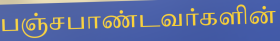
பஞ்சபாண்டவர்களின்